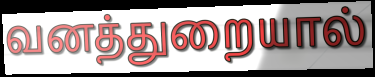
வனத்துறையால்